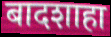
बादशाहा